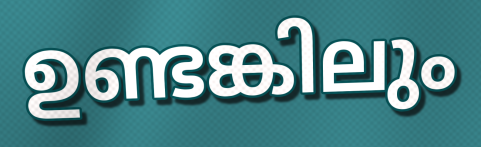
ഉണ്ടങ്കിലും